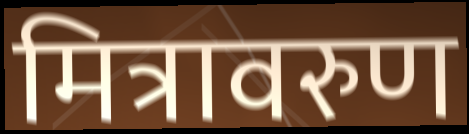
मित्रावरुण